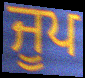
ਜੂਪ